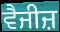
ਵੈਜੀਜ਼